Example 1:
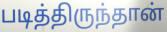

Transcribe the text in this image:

படித்திருந்தான்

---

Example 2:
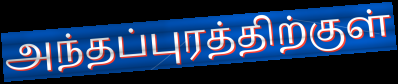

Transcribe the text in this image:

அந்தப்புரத்திற்குள்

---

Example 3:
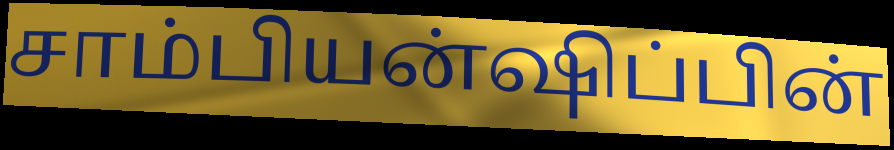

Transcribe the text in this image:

சாம்பியன்ஷிப்பின்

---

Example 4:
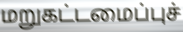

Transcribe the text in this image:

மறுகட்டமைப்புச்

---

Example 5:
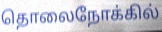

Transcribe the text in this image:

தொலைநோக்கில்